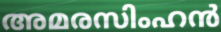
അമരസിംഹൻ